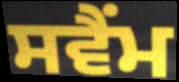
ਸਵੈਂਮ